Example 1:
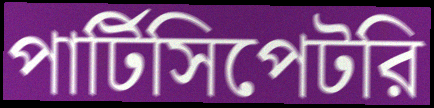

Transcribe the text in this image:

পার্টিসিপেটরি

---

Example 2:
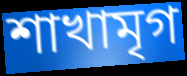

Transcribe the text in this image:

শাখামৃগ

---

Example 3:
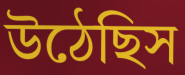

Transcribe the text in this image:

উঠেছিস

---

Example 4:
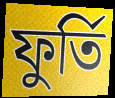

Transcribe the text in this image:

ফুর্তি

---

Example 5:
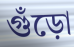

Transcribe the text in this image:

গুঁড়ো